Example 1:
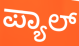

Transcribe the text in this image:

ಪ್ಯಾಲ್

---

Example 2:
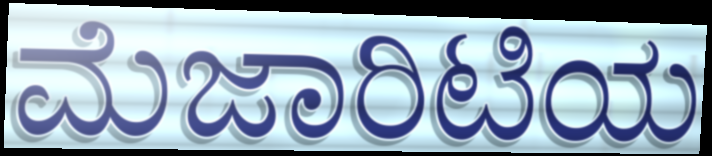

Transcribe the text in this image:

ಮೆಜಾರಿಟಿಯ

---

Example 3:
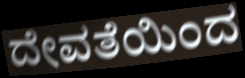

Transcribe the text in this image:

ದೇವತೆಯಿಂದ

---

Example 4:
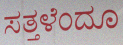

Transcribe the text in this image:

ಸತ್ತಳೆಂದೂ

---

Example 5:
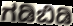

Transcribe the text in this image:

ಗಡಿಬಿಡಿ